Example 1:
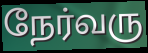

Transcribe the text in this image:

நேர்வரு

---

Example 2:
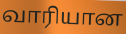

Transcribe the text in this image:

வாரியான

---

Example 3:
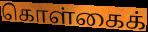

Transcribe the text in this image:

கொள்கைக்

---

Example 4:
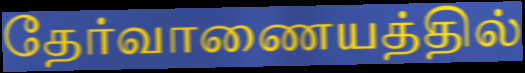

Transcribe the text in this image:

தேர்வாணையத்தில்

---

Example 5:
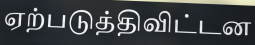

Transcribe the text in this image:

ஏற்படுத்திவிட்டன